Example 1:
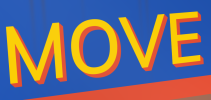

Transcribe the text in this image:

MOVE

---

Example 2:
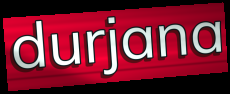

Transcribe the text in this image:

durjana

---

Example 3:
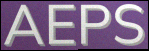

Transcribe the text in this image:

AEPS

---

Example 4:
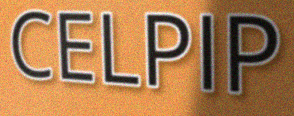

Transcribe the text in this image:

CELPIP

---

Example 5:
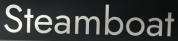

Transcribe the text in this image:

Steamboat